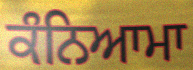
ਕੰਨਿਆਮਾ